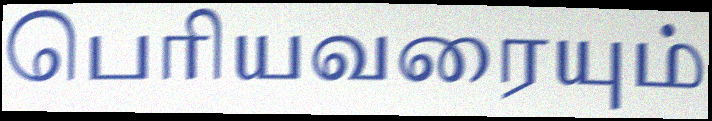
பெரியவரையும்